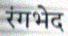
रंगभेद